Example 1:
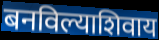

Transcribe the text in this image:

बनविल्याशिवाय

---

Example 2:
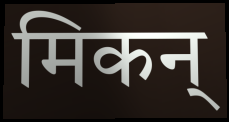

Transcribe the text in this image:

मिकन्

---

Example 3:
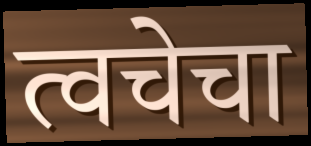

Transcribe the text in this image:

त्वचेचा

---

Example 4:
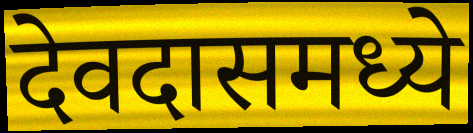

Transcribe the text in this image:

देवदासमध्ये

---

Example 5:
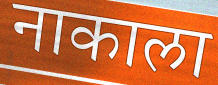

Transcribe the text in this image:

नाकाला